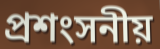
প্ৰশংসনীয়